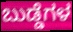
ಬುಡ್ಡೆಗಳ